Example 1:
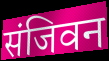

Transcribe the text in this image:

संजिवन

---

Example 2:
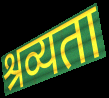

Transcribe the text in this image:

श्रव्यता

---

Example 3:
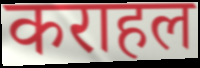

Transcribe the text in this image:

कराहल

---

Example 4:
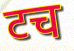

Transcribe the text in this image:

टच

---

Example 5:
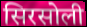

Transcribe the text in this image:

सिरसोली